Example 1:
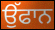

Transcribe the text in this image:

ਉੱਫਾਨ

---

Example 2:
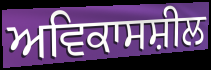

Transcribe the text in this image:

ਅਵਿਕਾਸਸ਼ੀਲ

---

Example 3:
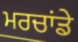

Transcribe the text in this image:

ਮਰਚਾਂਡੇ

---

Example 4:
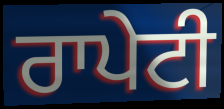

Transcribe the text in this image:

ਰਾਪੇਟੀ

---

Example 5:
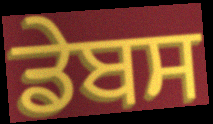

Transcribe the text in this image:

ਡੇਬਸ